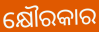
କ୍ଷୌରକାର